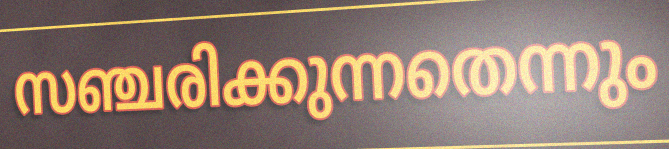
സഞ്ചരിക്കുന്നതെന്നും